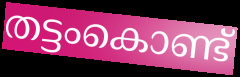
തട്ടംകൊണ്ട്